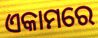
ଏକାମରେ